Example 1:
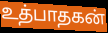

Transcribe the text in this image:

உத்பாதகன்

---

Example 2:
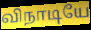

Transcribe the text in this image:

விநாடியே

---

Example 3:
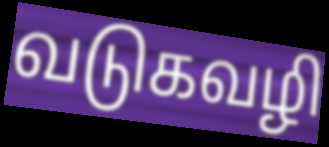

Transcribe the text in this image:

வடுகவழி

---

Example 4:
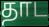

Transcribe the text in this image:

தாட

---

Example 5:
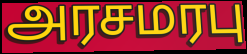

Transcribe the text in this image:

அரசமரபு